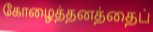
கோழைத்தனத்தைப்